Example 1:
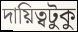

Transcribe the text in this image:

দায়িত্বটুকু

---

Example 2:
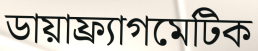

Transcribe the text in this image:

ডায়াফ্র্যাগমেটিক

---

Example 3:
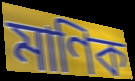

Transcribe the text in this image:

মাণিক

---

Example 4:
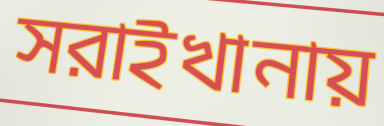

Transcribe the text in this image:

সরাইখানায়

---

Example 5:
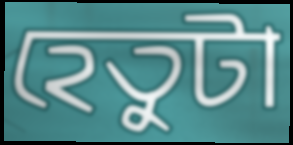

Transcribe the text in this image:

হেতুটা